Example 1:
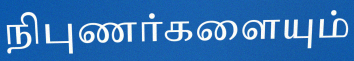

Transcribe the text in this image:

நிபுணர்களையும்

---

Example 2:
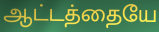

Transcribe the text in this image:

ஆட்டத்தையே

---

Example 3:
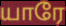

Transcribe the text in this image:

யாரே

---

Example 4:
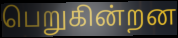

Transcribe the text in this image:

பெறுகின்றன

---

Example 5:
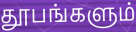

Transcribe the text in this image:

தூபங்களும்